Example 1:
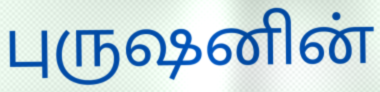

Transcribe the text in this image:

புருஷனின்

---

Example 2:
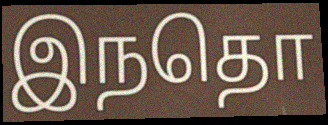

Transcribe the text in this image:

இநதொ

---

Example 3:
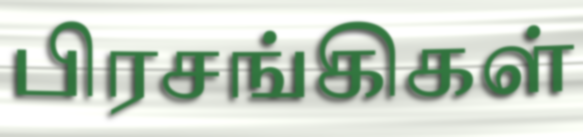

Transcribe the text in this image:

பிரசங்கிகள்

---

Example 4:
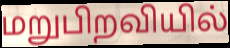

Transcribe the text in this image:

மறுபிறவியில்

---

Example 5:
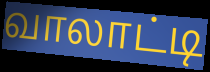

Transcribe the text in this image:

வாலாட்டி